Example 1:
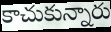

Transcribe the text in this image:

కాచుకున్నారు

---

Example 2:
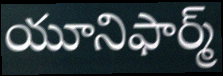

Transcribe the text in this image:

యూనిఫార్మ్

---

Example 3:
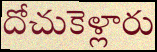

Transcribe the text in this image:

దోచుకెళ్లారు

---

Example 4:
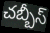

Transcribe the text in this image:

చబ్బీస్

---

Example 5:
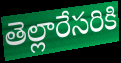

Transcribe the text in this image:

తెల్లారేసరికి